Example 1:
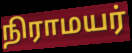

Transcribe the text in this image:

நிராமயர்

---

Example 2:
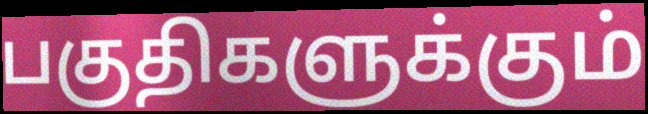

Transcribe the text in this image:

பகுதிகளுக்கும்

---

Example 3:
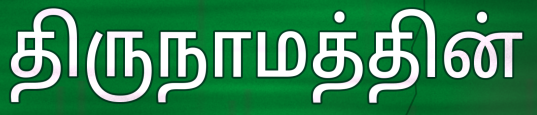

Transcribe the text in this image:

திருநாமத்தின்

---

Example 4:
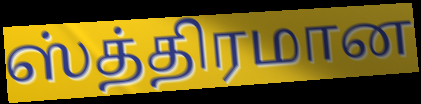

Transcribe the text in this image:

ஸ்த்திரமான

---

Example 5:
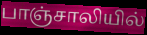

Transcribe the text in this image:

பாஞ்சாலியில்